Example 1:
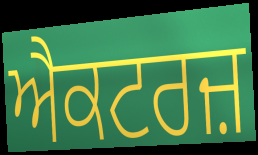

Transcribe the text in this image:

ਐਕਟਰਜ਼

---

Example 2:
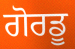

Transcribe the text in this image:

ਗੋਰਡੂ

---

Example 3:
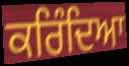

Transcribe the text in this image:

ਕਰਿੰਦਿਆ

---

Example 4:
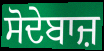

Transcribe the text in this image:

ਸੋਦੇਬਾਜ਼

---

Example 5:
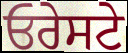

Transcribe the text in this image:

ਓਰੇਸਟੇ